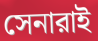
সেনারাই